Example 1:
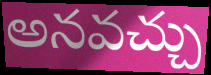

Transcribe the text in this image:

అనవచ్చు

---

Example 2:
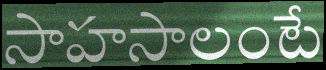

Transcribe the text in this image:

సాహసాలంటే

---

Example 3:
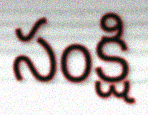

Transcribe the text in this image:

సంక్షి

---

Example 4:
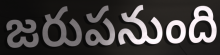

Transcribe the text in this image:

జరుపనుంది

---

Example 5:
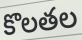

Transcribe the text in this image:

కొలతల